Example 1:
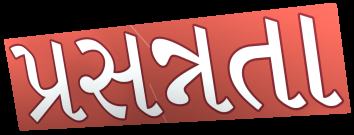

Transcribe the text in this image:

પ્રસન્નતા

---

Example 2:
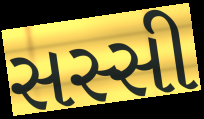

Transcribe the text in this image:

સસ્સી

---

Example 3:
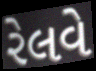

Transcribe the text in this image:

રેલવે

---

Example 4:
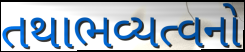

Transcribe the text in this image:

તથાભવ્યત્વનો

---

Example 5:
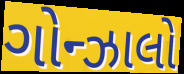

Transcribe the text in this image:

ગોન્ઝાલો